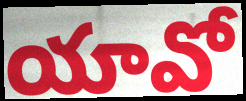
యావో